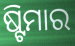
ଷ୍ଟିମାର